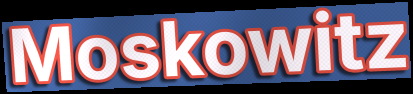
Moskowitz